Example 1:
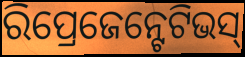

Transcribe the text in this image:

ରିପ୍ରେଜେନ୍ଟେଟିଭସ୍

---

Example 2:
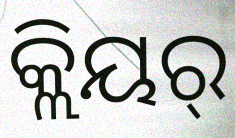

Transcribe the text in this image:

କ୍ଲିୟର୍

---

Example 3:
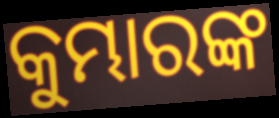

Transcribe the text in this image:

କୁମ୍ଭାରଙ୍କ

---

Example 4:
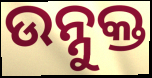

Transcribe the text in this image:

ଉନ୍ନୁକ୍ତ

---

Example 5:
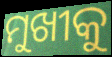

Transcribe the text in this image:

ମୁଖୀକୁ